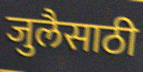
जुलैसाठी